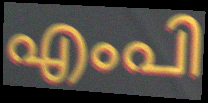
എംപി